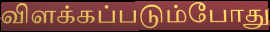
விளக்கப்படும்போது